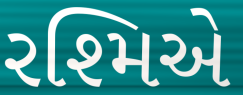
રશ્મિએ